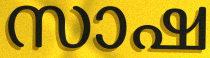
സാഷ